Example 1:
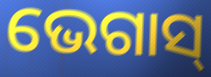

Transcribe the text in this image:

ଭେଗାସ୍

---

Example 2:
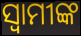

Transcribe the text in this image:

ସ୍ୱାମୀଙ୍କ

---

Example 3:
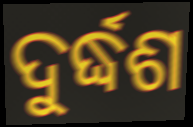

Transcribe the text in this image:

ଦୁର୍ଦ୍ଧଶ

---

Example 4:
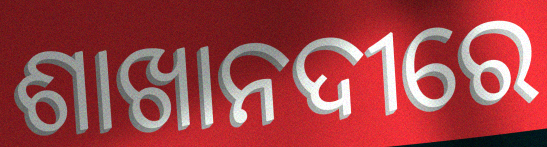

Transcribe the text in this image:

ଶାଖାନଦୀରେ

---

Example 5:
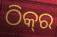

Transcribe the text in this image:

ଠିକ୍‍ର